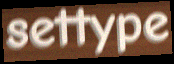
settype